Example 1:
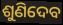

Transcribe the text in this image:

ଶୁଣିଦେବ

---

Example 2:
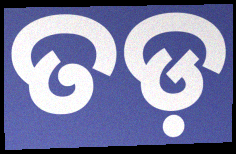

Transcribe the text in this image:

ତଡ଼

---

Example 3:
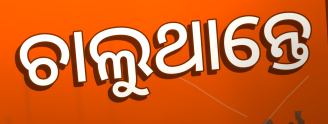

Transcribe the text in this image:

ଚାଲୁଥାନ୍ତେ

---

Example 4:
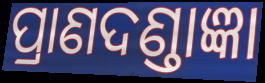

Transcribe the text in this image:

ପ୍ରାଣଦଣ୍ଡାଜ୍ଞା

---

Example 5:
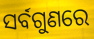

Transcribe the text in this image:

ସର୍ବଗୁଣରେ